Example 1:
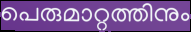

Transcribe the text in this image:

പെരുമാറ്റത്തിനും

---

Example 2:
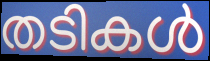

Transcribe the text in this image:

തടികൾ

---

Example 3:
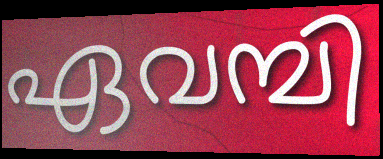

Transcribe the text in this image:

ഏവമ്പി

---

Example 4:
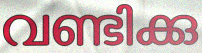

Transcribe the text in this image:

വണ്ടിക്കു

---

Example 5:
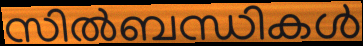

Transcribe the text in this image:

സിൽബന്ധികൾ